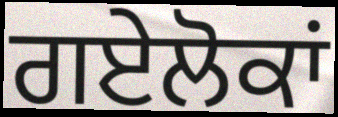
ਗਏਲੋਕਾਂ